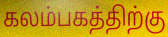
கலம்பகத்திற்கு